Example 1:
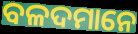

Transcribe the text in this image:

ବଳଦମାନେ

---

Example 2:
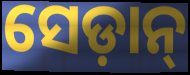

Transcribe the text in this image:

ସେଡ଼ାନ୍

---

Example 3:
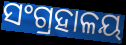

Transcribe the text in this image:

ସଂଗ୍ରହାଳୟ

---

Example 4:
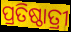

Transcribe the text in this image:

ପ୍ରତିଷ୍ଠାତ୍ରୀ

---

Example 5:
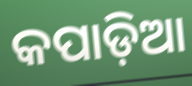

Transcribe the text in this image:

କପାଡ଼ିଆ